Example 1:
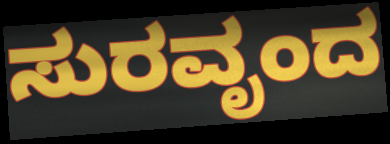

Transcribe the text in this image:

ಸುರವೃಂದ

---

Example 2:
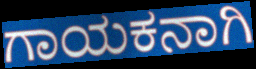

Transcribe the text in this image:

ಗಾಯಕನಾಗಿ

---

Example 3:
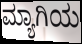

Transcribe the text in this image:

ಮ್ಯಾಗಿಯ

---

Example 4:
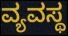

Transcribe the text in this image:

ವ್ಯವಸ್ಥ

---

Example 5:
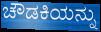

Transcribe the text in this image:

ಚೌಡಕಿಯನ್ನು